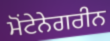
ਮੋਂਟੇਨੇਗਰੀਨ